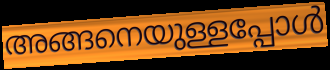
അങ്ങനെയുള്ളപ്പോൾ